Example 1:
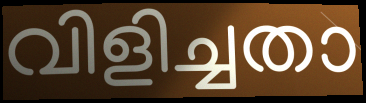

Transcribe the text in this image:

വിളിച്ചതാ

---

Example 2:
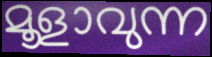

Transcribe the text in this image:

മൂളാവുന്ന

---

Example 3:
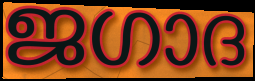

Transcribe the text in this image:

ജഗാദ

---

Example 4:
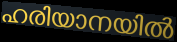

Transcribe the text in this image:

ഹരിയാനയിൽ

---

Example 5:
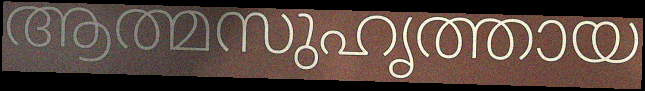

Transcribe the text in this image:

ആത്മസുഹൃത്തായ